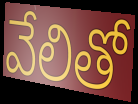
వేలితో